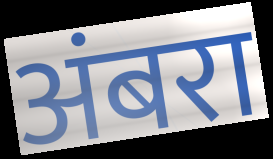
अंबरा